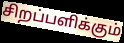
சிறப்பளிக்கும்